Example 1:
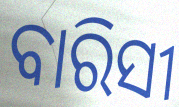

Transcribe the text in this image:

ବାରିସୀ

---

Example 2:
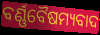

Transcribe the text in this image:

ବର୍ଣ୍ଣବୈଷମ୍ୟବାଦ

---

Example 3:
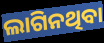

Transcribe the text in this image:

ଲାଗିନଥିବା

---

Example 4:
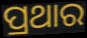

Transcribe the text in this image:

ପ୍ରଥାର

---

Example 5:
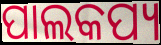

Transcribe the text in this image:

ପାଲକପ୍ୟ